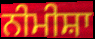
ਨੀਮੀਸ਼ਾ